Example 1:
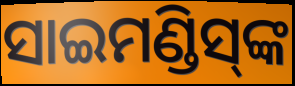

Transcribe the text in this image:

ସାଇମଣ୍ଡିସ୍‍ଙ୍କ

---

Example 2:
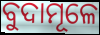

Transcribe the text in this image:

ବୁଦାମୂଳେ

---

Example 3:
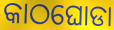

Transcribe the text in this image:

କାଠଘୋଡା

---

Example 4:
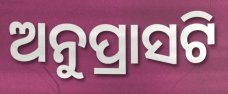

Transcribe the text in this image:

ଅନୁପ୍ରାସଟି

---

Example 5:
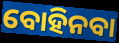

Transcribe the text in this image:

ବୋହିନବା